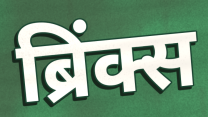
ब्रिंक्स